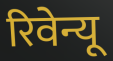
रिवेन्यू